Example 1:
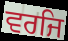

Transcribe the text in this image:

ਵਰਜਿ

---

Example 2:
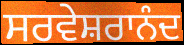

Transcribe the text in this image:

ਸਰਵੇਸ਼ਰਾਨੰਦ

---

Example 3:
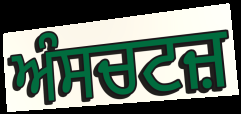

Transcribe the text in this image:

ਅੰਸਚਟਜ਼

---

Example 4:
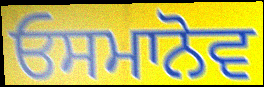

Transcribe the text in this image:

ਓਸਮਾਨੋਵ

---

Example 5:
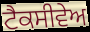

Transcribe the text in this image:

ਟੈਕਸੀਵੇਅ